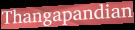
Thangapandian